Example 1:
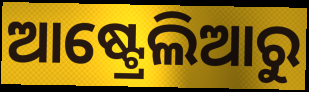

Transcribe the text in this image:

ଆଷ୍ଟ୍ରେଲିଆରୁ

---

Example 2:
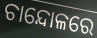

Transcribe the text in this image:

ଚାନ୍ଦୋଳରେ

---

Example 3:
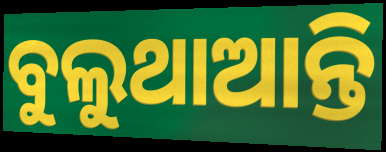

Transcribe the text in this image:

ବୁଲୁଥାଆନ୍ତି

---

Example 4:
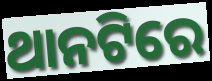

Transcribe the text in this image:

ଥାନଟିରେ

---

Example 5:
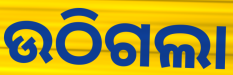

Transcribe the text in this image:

ଉଠିଗଲା